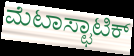
ಮೆಟಾಸ್ಟಾಟಿಕ್